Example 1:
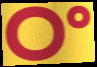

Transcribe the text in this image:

ଠଂ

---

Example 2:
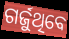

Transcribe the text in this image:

ଗର୍ଜୁଥିବେ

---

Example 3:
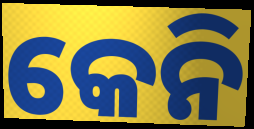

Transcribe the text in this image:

କେନି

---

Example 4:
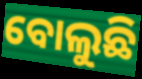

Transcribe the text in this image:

ବୋଲୁଛି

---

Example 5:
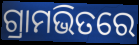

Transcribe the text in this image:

ଗ୍ରାମଭିତରେ